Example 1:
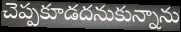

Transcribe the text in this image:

చెప్పకూడదనుకున్నాను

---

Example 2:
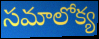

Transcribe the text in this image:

సమాలోక్య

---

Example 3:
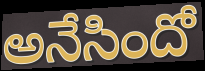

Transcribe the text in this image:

అనేసిందో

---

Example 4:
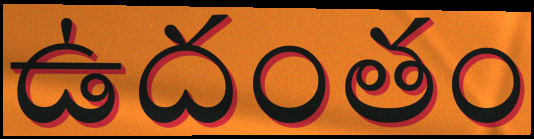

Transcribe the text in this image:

ఉదంతం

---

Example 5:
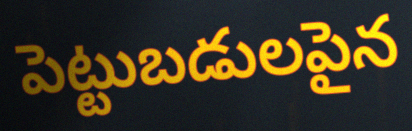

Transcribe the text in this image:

పెట్టుబడులపైన